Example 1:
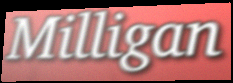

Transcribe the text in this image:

Milligan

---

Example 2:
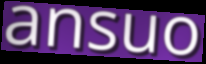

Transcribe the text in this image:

ansuo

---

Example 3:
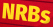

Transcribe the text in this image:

NRBs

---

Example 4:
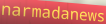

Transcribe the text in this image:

narmadanews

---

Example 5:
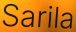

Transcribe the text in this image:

Sarila